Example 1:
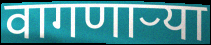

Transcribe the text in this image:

वागणाऱ्या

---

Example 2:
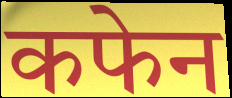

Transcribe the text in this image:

कफेन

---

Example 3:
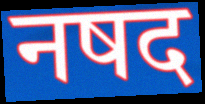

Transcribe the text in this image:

नषद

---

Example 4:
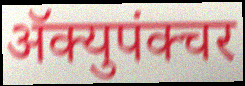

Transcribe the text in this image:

ॲक्युपंक्चर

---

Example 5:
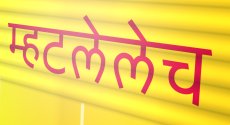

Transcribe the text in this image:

म्हटलेलेच